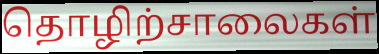
தொழிற்சாலைகள்